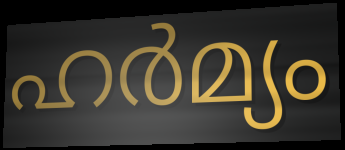
ഹർമ്യം